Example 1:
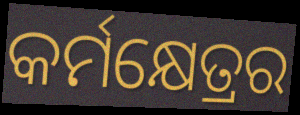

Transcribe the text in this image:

କର୍ମକ୍ଷେତ୍ରର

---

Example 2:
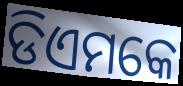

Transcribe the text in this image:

ଡିଏମକେ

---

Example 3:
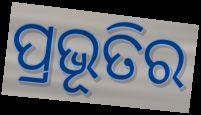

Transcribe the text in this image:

ପ୍ରଭୂତିର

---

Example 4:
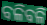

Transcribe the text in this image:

ବଳିବଳି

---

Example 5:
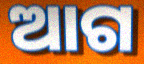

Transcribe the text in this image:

ଆଗ